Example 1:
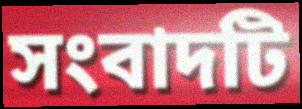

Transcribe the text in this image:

সংবাদটি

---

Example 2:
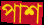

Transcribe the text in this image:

পাশ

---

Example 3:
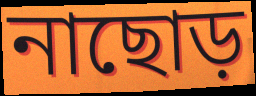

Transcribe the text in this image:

নাছোড়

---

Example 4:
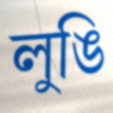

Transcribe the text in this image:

লুঙি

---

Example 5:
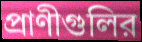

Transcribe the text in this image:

প্রাণীগুলির